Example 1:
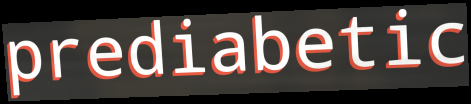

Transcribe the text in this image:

prediabetic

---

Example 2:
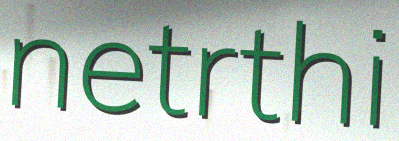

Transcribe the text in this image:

netrthi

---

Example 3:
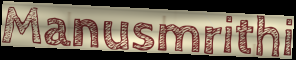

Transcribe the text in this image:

Manusmrithi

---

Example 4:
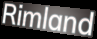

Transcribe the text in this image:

Rimland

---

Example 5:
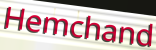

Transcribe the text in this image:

Hemchand